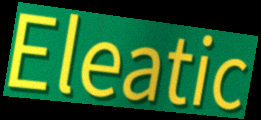
Eleatic